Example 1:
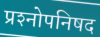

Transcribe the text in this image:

प्रश्नोपनिषद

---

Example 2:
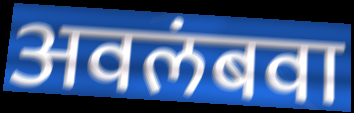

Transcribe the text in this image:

अवलंबवा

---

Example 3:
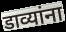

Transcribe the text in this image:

डाव्यांना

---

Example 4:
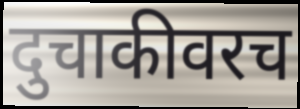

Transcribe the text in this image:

दुचाकीवरच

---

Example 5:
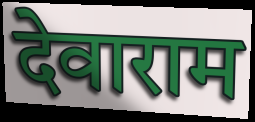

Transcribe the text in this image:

देवाराम